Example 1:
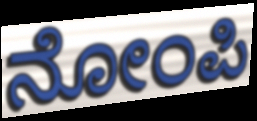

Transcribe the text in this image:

ನೋಂಪಿ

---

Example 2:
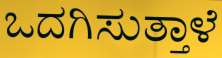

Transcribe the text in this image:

ಒದಗಿಸುತ್ತಾಳೆ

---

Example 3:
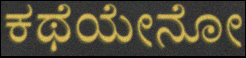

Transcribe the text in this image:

ಕಥೆಯೇನೋ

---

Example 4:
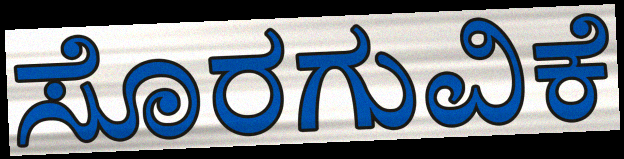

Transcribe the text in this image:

ಸೊರಗುವಿಕೆ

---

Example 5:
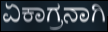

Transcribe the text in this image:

ಏಕಾಗ್ರನಾಗಿ